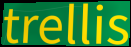
trellis